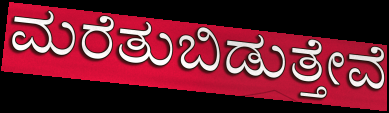
ಮರೆತುಬಿಡುತ್ತೇವೆ